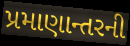
પ્રમાણાન્તરની